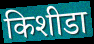
किशीडा